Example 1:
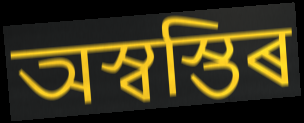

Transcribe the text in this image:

অস্বস্তিৰ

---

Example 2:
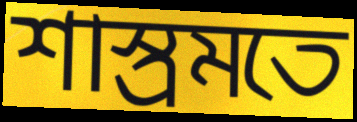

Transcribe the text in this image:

শাস্ত্ৰমতে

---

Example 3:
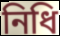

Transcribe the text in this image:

নিধি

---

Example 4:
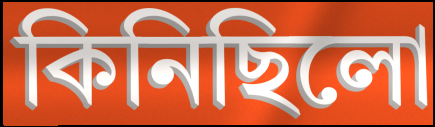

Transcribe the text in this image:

কিনিছিলো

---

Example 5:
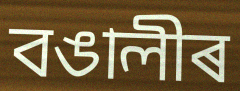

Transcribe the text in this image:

বঙালীৰ